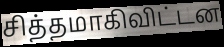
சித்தமாகிவிட்டன